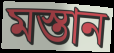
মস্তান